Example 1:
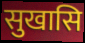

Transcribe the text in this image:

सुखासि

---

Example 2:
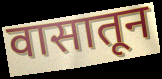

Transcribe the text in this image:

वासातून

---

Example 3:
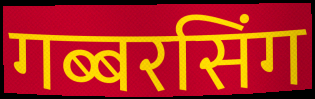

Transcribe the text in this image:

गब्बरसिंग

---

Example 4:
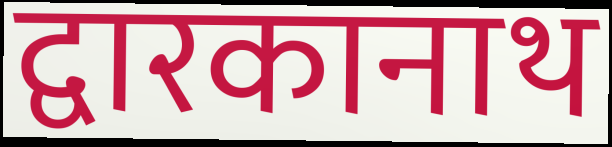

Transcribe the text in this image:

द्वारकानाथ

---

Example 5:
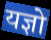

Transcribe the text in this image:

यज्ञो